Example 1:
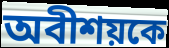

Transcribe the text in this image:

অবীশয়কে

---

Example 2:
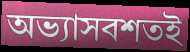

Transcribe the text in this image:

অভ্যাসবশতই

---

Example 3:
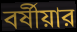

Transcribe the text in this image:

বর্ষীয়ার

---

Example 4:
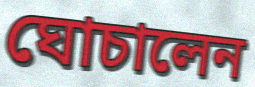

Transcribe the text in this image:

ঘোচালেন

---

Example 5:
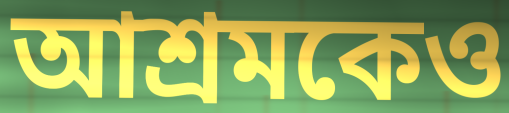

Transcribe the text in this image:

আশ্রমকেও